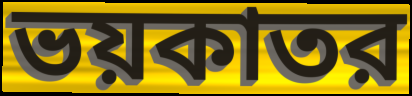
ভয়কাতর